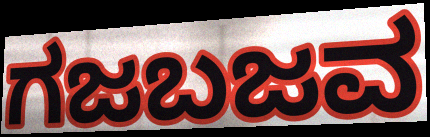
ಗಜಬಜವ